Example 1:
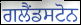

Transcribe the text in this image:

ਗਲੈਂਡਸਟੋਨ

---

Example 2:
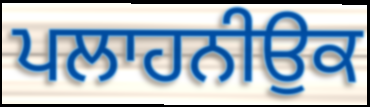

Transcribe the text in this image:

ਪਲਾਹਨੀਉਕ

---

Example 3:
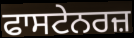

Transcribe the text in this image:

ਫਾਸਟੇਨਰਜ਼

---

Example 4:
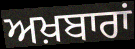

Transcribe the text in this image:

ਅਖ਼ਬਾਰਾਂ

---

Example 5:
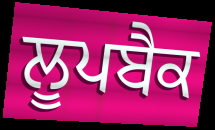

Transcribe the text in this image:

ਲੂਪਬੈਕ